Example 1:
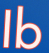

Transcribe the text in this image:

Ib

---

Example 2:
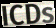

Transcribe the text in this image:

ICDs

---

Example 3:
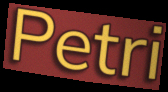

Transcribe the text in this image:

Petri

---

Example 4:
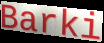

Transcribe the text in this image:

Barki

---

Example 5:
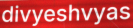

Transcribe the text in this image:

divyeshvyas